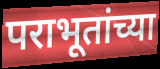
पराभूतांच्या